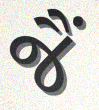
જૈં